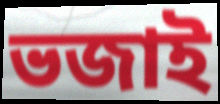
ভজাই